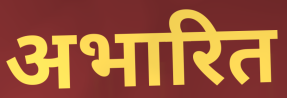
अभारित